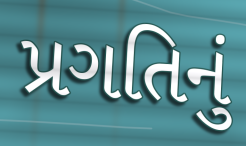
પ્રગતિનું